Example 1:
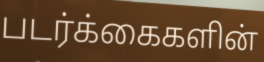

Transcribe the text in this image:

படர்க்கைகளின்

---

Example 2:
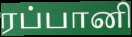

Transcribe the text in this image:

ரப்பானி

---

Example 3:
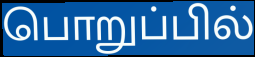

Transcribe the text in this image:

பொறுப்பில்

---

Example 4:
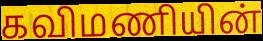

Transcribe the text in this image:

கவிமணியின்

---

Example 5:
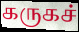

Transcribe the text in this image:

கருகச்